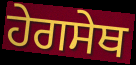
ਹੇਗਸੇਥ